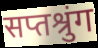
सप्तश्रुंग